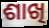
ଶାଖି